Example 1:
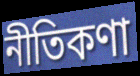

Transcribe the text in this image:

নীতিকণা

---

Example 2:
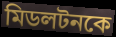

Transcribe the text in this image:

মিডলটনকে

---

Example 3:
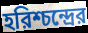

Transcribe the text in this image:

হরিশ্চন্দ্রের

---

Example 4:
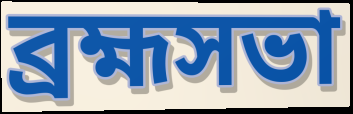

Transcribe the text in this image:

ব্রহ্মসভা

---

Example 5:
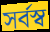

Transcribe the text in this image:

সর্বস্ব